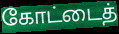
கோட்டைத்